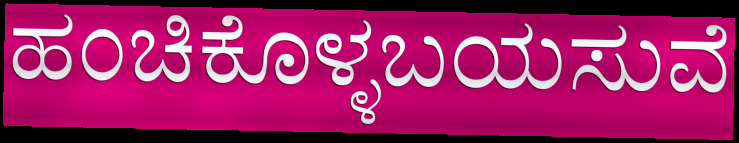
ಹಂಚಿಕೊಳ್ಳಬಯಸುವೆ